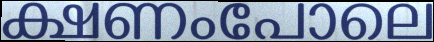
ക്ഷണംപോലെ